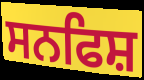
ਸਨਫਿਸ਼